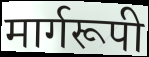
मार्गरूपी